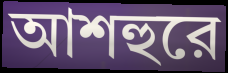
আশহুরে